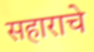
सहाराचे